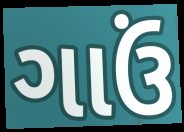
ગાઉં